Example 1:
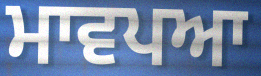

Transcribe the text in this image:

ਮਾਵਪਆ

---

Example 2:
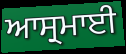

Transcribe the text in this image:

ਆਸ੍ਰਮਾਈ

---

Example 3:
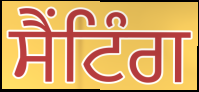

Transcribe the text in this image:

ਸੈਂਟਿੰਗ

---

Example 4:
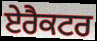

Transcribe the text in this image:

ਏਰੈਕਟਰ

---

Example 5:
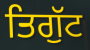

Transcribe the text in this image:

ਤਿਗੁੱਟ